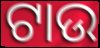
ଟାଉ